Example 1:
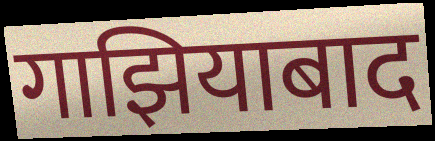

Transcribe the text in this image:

गाझियाबाद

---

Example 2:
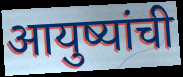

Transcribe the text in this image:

आयुष्यांची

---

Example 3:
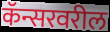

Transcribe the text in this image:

कॅन्सरवरील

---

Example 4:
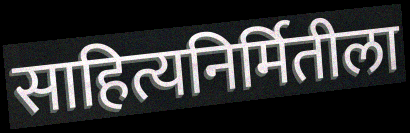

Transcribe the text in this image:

साहित्यनिर्मितीला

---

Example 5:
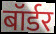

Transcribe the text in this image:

बॉर्डर